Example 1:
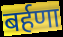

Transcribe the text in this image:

बर्हणा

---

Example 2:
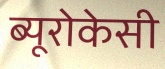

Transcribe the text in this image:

ब्यूरोकेसी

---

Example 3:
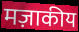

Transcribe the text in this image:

मज़ाकीय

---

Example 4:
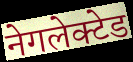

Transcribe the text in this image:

नेगलेक्टेड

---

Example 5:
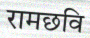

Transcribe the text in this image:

रामछवि